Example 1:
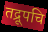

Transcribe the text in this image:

तद्रूपचि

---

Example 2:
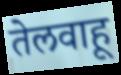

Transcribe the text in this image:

तेलवाहू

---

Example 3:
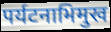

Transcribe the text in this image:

पर्यटनाभिमुख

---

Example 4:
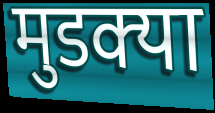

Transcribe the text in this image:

मुडक्या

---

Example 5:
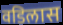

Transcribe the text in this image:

वडिलास